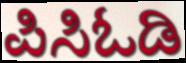
ಪಿಸಿಓಡಿ